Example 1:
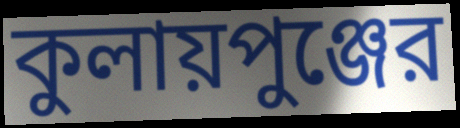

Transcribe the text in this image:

কুলায়পুঞ্জের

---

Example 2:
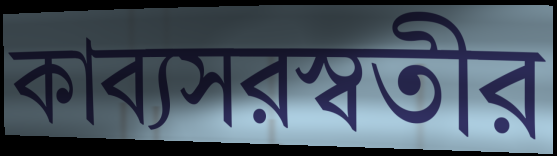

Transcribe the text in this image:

কাব্যসরস্বতীর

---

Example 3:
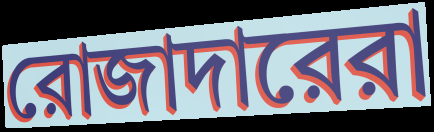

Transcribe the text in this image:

রোজাদারেরা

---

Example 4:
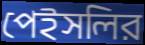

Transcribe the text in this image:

পেইসলির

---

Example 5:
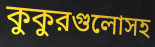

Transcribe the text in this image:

কুকুরগুলোসহ